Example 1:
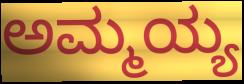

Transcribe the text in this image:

ಅಮ್ಮಯ್ಯ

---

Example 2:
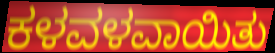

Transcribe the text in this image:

ಕಳವಳವಾಯಿತು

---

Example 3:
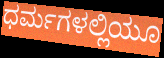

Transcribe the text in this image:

ಧರ್ಮಗಳಲ್ಲಿಯೂ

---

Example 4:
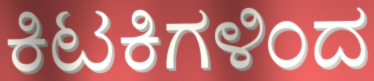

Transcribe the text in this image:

ಕಿಟಕಿಗಳಿಂದ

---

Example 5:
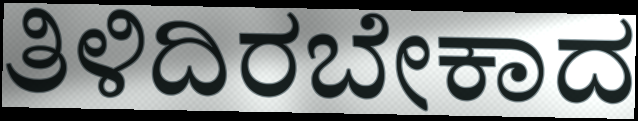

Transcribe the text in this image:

ತಿಳಿದಿರಬೇಕಾದ